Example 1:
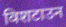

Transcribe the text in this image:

विशटाउन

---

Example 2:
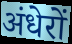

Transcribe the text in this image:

अंधेरों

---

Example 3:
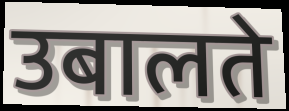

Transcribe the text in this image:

उबालते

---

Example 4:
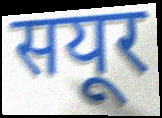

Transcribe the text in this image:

सयूर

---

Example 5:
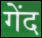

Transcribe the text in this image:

गेंद